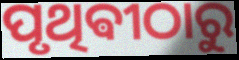
ପୃଥିଵୀଠାରୁ